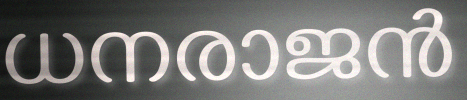
ധനരാജൻ